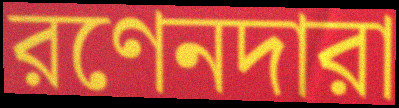
রণেনদারা